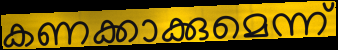
കണക്കാക്കുമെന്ന്